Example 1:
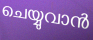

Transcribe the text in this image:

ചെയ്യുവാൻ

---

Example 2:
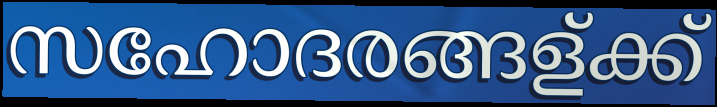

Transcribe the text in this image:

സഹോദരങ്ങള്ക്ക്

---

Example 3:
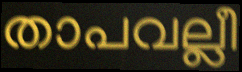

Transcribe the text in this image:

താപവല്ലീ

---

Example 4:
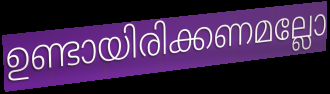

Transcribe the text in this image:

ഉണ്ടായിരിക്കണമല്ലോ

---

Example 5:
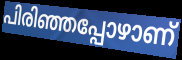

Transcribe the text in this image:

പിരിഞ്ഞപ്പോഴാണ്